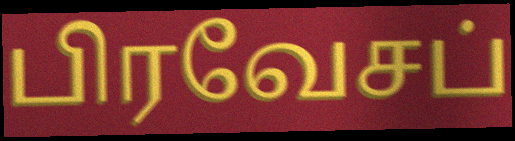
பிரவேசப்